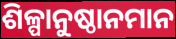
ଶିଳ୍ପାନୁଷ୍ଠାନମାନ